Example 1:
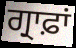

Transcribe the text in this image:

ਗ੍ਰਾਫ਼ਾਂ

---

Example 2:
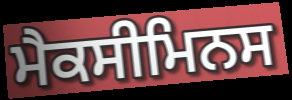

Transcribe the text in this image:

ਮੈਕਸੀਮਿਨਸ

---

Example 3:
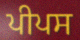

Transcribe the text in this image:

ਪੀਪਸ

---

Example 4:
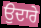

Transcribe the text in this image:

ਉਦਾਰੇ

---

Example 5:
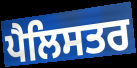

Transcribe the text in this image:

ਪੈਲਿਸਤਰ